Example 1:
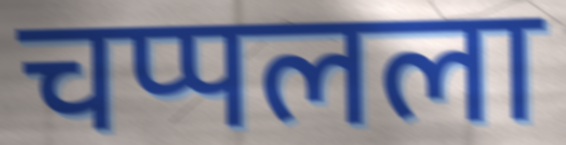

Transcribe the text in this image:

चप्पलला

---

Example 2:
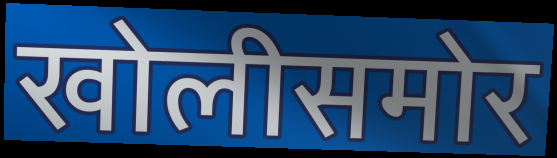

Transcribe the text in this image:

खोलीसमोर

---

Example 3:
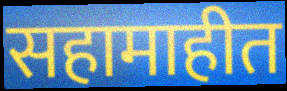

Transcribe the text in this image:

सहामाहीत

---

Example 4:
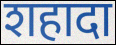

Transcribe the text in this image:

शहादा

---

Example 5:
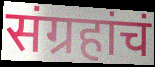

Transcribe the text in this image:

संग्रहांचं